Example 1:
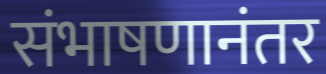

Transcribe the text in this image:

संभाषणानंतर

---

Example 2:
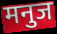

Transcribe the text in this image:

मनुज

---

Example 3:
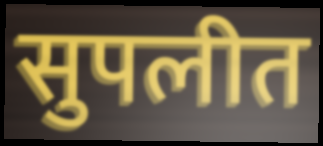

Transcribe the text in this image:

सुपलीत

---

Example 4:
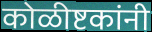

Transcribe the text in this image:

कोळीष्टकांनी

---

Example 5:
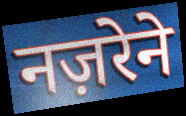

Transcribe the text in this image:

नज़रेने